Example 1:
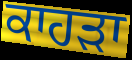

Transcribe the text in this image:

ਕਾਹੜਾ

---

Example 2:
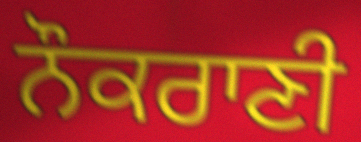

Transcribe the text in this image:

ਨੌਕਰਾਣੀ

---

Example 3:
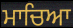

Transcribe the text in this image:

ਮਾਚਿਆ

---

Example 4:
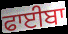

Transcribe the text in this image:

ਫਾਈਬਾ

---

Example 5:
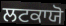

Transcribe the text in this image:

ਲਟਕਾਯੋ